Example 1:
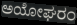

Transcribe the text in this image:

ಅಯೋಘರಂ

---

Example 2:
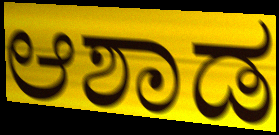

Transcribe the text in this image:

ಆಶಾಡ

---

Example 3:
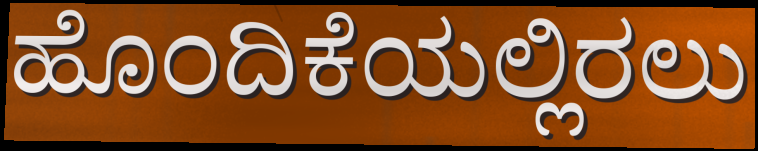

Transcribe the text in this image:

ಹೊಂದಿಕೆಯಲ್ಲಿರಲು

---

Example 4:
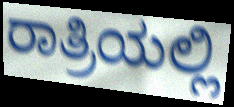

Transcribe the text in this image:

ರಾತ್ರಿಯಲ್ಲಿ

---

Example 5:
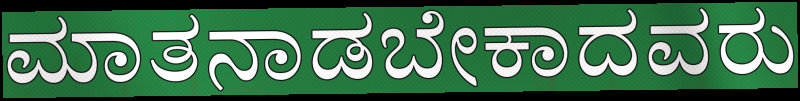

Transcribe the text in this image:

ಮಾತನಾಡಬೇಕಾದವರು